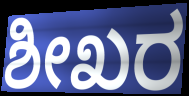
ಶೀಖರ